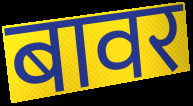
बावर